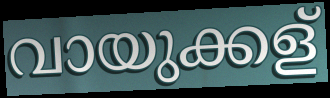
വായുക്കള്